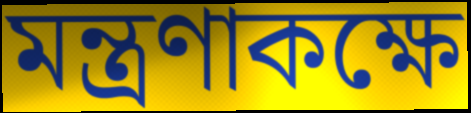
মন্ত্রণাকক্ষে